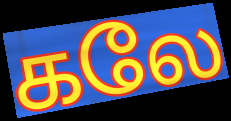
கலே